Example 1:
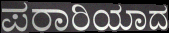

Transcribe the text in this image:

ಪರಾರಿಯಾದ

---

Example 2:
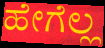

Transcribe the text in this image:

ಹೇಗೆಲ್ಲ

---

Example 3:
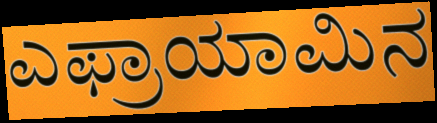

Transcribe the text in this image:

ಎಫ್ರಾಯಾಮಿನ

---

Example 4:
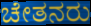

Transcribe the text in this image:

ಚೇತನರು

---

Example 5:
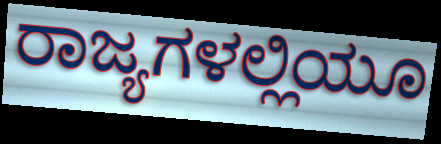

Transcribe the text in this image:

ರಾಜ್ಯಗಳಲ್ಲಿಯೂ